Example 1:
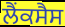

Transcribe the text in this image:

ਲੈਂਕਸੈਸ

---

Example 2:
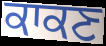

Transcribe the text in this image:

ਕਾਕਣ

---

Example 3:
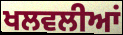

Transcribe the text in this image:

ਖਲਵਲੀਆਂ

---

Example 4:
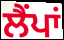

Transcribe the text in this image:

ਲੈਂਪਾਂ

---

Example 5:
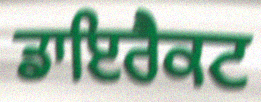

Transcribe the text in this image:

ਡਾਇਰੈਕਟ